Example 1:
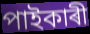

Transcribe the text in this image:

পাইকাৰী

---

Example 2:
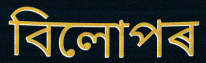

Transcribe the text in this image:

বিলোপৰ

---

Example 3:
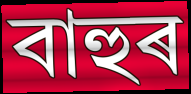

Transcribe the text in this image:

বাহুৰ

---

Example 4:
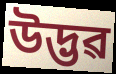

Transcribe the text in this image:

উদ্ভৱ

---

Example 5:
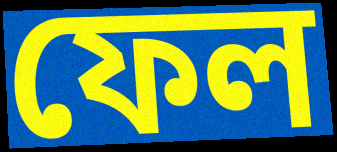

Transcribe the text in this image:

ফেল